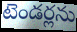
టెండర్లను